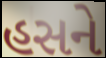
હસને